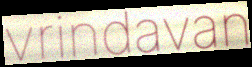
vrindavan